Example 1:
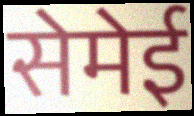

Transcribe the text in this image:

सेमेई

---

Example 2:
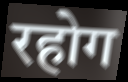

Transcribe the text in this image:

रहोग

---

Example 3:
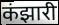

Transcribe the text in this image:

कंझारी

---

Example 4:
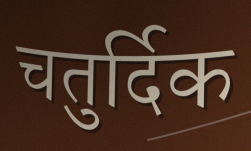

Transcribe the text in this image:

चतुर्दिक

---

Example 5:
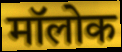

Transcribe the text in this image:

मॉलोक